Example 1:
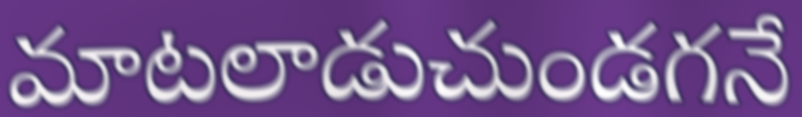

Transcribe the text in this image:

మాటలాడుచుండగనే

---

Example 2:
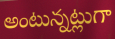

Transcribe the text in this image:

అంటున్నట్లుగా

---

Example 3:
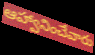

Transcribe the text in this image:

ఆహ్వానించేవారు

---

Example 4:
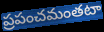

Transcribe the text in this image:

ప్రపంచమంతటా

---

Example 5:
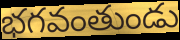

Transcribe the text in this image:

భగవంతుండు